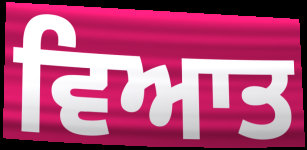
ਵਿਆਤ